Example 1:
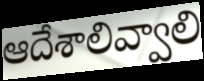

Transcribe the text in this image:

ఆదేశాలివ్వాలి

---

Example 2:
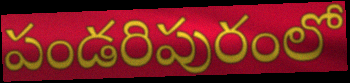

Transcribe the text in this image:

పండరిపురంలో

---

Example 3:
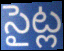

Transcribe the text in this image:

సైట్ల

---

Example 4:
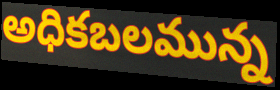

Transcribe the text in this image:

అధికబలమున్న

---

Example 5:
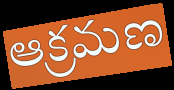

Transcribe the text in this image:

ఆక్రమణ